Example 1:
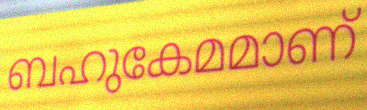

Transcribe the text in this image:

ബഹുകേമമാണ്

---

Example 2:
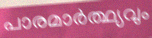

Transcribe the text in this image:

പാരമാർത്ഥ്യവും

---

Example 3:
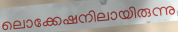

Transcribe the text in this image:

ലൊക്കേഷനിലായിരുന്നു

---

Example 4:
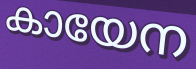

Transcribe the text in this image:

കായേന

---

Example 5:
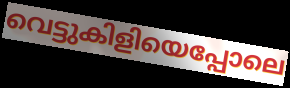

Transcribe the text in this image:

വെട്ടുകിളിയെപ്പോലെ